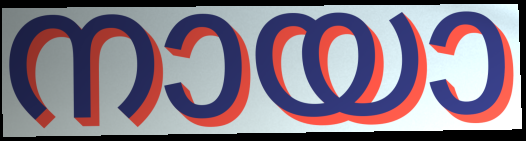
നായാ